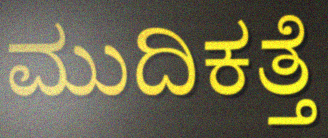
ಮುದಿಕತ್ತೆ